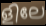
ളിലേ